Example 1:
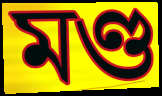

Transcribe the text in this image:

মণ্ড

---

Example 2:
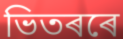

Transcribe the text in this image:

ভিতৰৰে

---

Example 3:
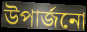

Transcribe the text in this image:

উপাৰ্জনো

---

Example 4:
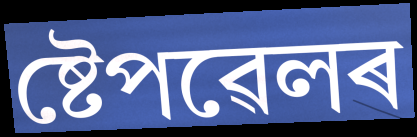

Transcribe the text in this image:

ষ্টেপৱেলৰ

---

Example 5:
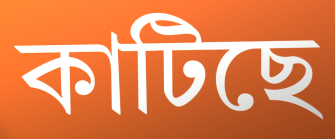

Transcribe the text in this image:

কাটিছে